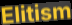
Elitism